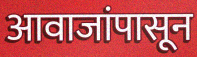
आवाजांपासून